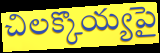
చిలక్కొయ్యపై